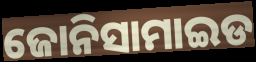
ଜୋନିସାମାଇଡ